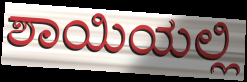
ಶಾಯಿಯಲ್ಲಿ